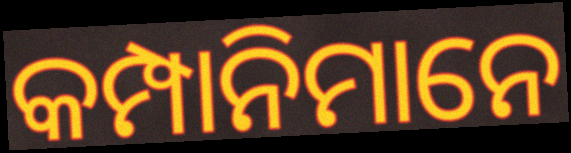
କମ୍ପାନିମାନେ